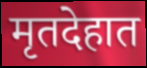
मृतदेहात